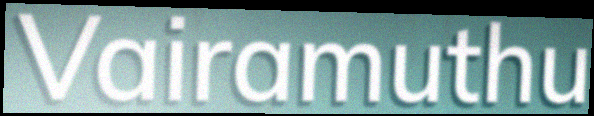
Vairamuthu